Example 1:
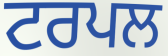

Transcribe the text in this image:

ਟਰਪਲ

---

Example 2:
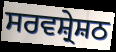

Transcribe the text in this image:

ਸਰਵਸ਼੍ਰੇਸ਼ਠ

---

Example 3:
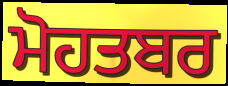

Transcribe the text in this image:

ਮੋਹਤਬਰ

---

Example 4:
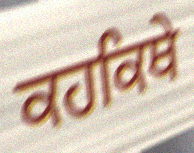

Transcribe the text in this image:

ਕਹਕਿਥੇ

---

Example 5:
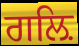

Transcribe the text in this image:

ਗਲ਼ਿ